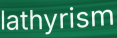
lathyrism